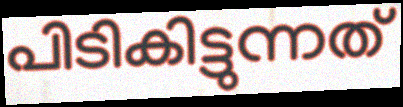
പിടികിട്ടുന്നത്